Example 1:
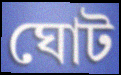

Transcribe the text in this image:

ঘোট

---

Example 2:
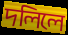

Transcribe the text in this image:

দলিলে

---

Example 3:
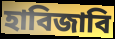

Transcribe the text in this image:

হাবিজাবি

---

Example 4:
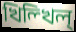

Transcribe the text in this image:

খিল্খিল্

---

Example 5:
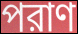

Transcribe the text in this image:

পরাণ